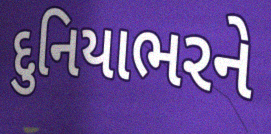
દુનિયાભરને